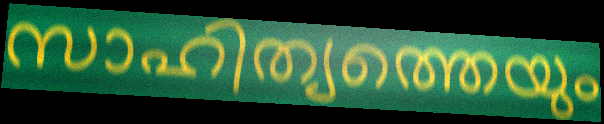
സാഹിത്യത്തെയും